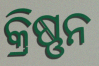
କ୍ରିଷ୍ଣନ